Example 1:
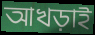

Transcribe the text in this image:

আখড়াই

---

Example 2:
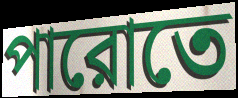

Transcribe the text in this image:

পারোতে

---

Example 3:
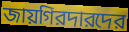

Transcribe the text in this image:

জায়গিরদারদের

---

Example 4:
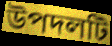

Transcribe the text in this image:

উপদলটি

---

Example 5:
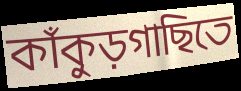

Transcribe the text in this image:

কাঁকুড়গাছিতে